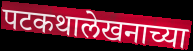
पटकथालेखनाच्या